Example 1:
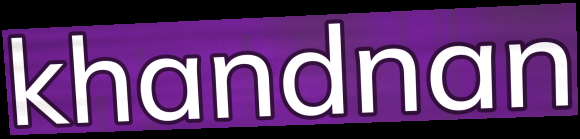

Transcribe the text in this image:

khandnan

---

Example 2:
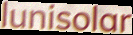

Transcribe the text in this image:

lunisolar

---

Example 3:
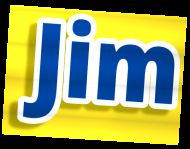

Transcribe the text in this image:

Jim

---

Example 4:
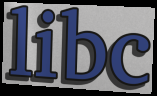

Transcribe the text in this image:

libc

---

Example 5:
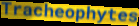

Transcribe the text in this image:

Tracheophytes